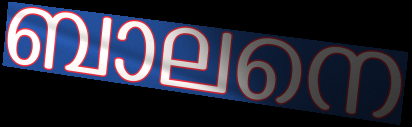
ബാലനെ